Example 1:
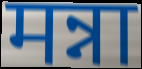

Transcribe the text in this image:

मन्ना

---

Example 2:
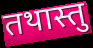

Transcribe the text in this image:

तथास्तु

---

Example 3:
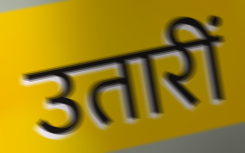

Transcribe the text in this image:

उतारीं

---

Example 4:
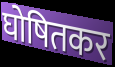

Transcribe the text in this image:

घोषितकर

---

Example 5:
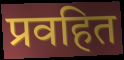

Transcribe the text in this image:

प्रवहित